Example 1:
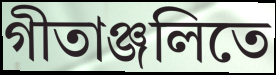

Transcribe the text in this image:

গীতাঞ্জলিতে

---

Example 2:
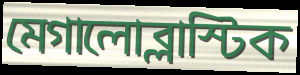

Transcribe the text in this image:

মেগালোব্লাস্টিক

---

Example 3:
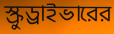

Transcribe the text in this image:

স্ক্রুড্রাইভারের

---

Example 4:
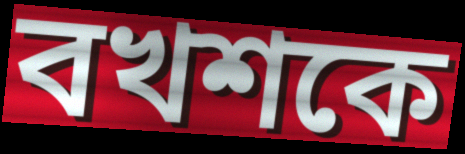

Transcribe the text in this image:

বখশকে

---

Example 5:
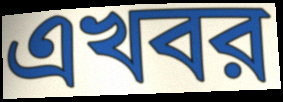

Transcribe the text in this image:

এখবর